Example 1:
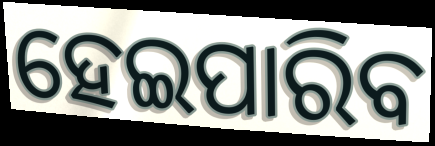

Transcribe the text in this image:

ହେଇପାରିବ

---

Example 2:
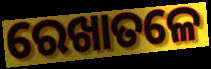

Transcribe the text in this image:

ରେଖାତଳେ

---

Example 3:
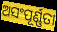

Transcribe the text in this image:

ଅସଂପୂର୍ଣ୍ଣତା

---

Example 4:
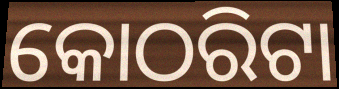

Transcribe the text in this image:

କୋଠରିଟା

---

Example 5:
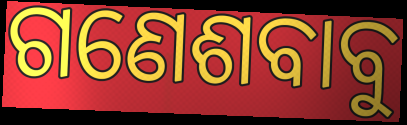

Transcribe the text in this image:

ଗଣେଶବାବୁ